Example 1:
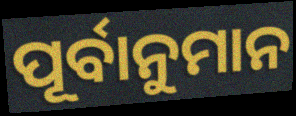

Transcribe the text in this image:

ପୂର୍ବାନୁମାନ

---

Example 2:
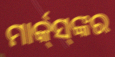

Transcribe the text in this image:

ମାର୍କ୍‌ସ୍‌ଙ୍କର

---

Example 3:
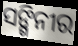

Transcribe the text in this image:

ସଙ୍ଗିନୀର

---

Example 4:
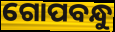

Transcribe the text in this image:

ଗୋପବନ୍ଧୁ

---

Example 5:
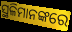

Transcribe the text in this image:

ସ୍ଥଳିମାନଙ୍କରେ